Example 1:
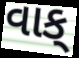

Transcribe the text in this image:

વાક્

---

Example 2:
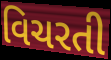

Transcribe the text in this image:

વિચરતી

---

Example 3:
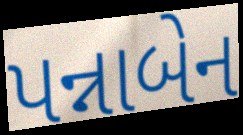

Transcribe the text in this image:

પન્નાબેન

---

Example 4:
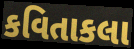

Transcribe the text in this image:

કવિતાકલા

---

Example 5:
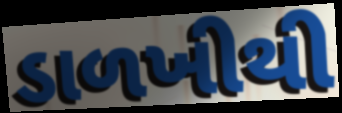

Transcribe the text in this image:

ડાળખીથી